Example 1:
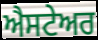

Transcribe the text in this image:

ਐਸਟੇਅਰ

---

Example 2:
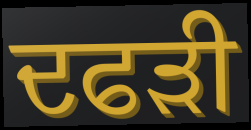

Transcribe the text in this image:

ਦਫੜੀ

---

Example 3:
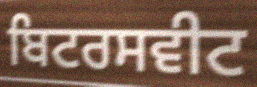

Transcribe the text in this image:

ਬਿਟਰਸਵੀਟ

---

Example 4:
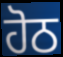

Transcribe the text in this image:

ਹੋਠ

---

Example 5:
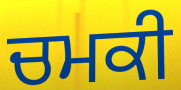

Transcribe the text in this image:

ਚਮਕੀ